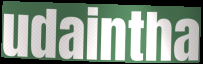
udaintha